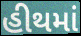
હીથમાં